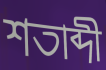
শতাব্দী